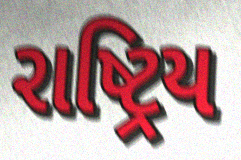
રાષ્ટ્રિય